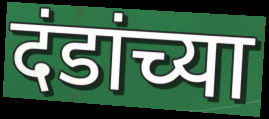
दंडांच्या